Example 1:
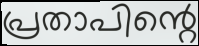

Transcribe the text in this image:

പ്രതാപിന്റെ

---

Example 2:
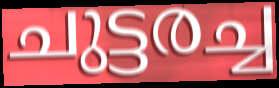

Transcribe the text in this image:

ചുട്ടരച്ച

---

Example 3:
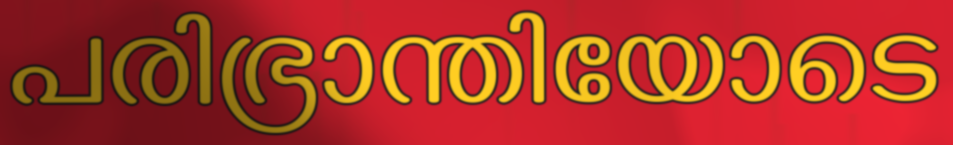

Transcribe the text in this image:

പരിഭ്രാന്തിയോടെ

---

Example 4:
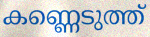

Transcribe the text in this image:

കണ്ണെടുത്ത്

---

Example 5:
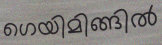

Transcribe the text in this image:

ഗെയിമിങ്ങിൽ